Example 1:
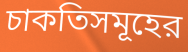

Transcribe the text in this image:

চাকতিসমূহের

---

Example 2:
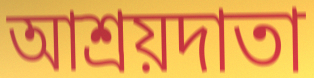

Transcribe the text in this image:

আশ্রয়দাতা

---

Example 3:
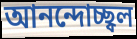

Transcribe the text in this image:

আনন্দোচ্ছ্বল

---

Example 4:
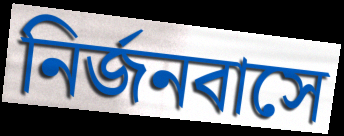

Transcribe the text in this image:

নির্জনবাসে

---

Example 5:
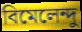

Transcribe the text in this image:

বিমেলেন্দু